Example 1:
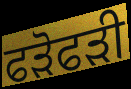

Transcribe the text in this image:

ਫੜੋਫੜੀ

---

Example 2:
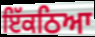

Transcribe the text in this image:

ਇੱਕਠਿਆ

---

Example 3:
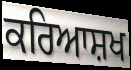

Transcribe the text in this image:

ਕਰਿਆਸ਼ਖ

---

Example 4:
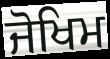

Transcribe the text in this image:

ਜੋਖਿਮ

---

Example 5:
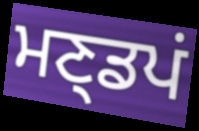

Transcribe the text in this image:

ਮਣ੍ਡਪਂ